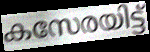
കസേരയിട്ട്